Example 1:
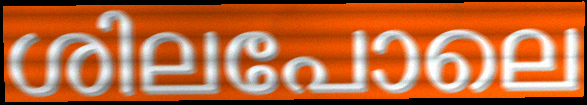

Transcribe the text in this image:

ശിലപോലെ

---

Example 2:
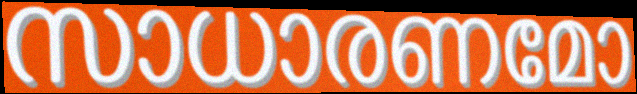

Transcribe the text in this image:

സാധാരണമോ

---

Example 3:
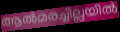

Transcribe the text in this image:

ആൽമരച്ചില്ലയിൽ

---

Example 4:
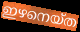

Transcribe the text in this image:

ഇഴനെയ്ത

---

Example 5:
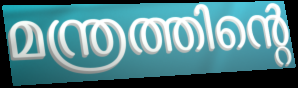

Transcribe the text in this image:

മന്ത്രത്തിന്റെ